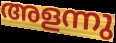
അളന്നു